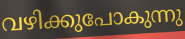
വഴിക്കുപോകുന്നു